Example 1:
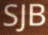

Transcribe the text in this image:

SJB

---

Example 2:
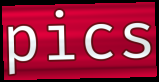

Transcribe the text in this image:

pics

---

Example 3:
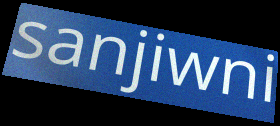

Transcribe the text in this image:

sanjiwni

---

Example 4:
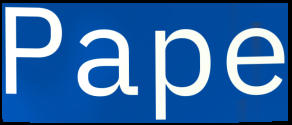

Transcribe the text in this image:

Pape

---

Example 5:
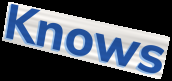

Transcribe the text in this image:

Knows